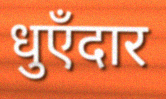
धुएँदार